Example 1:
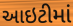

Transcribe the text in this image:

આઇટીમાં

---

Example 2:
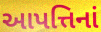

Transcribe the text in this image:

આપત્તિનાં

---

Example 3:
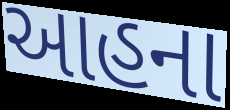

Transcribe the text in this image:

આહના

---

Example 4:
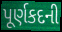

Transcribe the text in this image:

પૂર્ણકદની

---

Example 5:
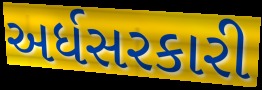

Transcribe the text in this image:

અર્ધસરકારી